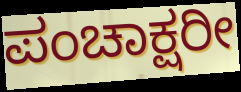
ಪಂಚಾಕ್ಷರೀ